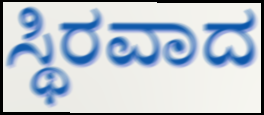
ಸ್ಥಿರವಾದ